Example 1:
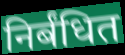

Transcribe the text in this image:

निर्बंधित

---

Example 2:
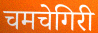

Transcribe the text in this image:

चमचेगिरी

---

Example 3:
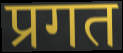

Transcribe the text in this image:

प्रगत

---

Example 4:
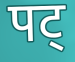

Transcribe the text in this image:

पट्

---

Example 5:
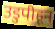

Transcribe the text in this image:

उडुपीहून